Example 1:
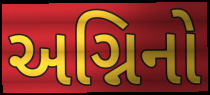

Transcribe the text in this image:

અગ્નિનો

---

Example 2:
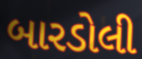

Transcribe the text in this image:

બારડોલી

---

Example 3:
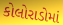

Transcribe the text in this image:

કોલોરાડોમાં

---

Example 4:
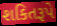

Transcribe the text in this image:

શકિતરૂપે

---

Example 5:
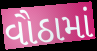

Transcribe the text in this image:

વૌઠામાં